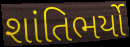
શાંતિભર્યો